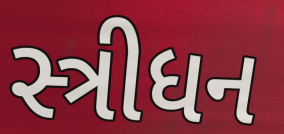
સ્ત્રીધન